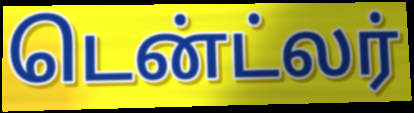
டென்ட்லர்